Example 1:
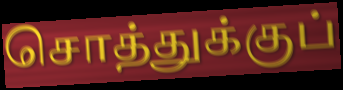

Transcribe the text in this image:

சொத்துக்குப்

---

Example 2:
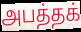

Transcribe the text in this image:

அபத்தக்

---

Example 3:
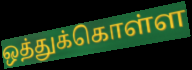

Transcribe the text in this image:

ஒத்துக்கொள்ள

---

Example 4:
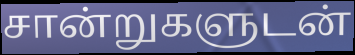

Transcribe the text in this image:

சான்றுகளுடன்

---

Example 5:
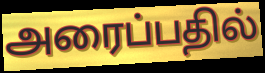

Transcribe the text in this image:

அரைப்பதில்